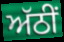
ਅੱਠੀਂ